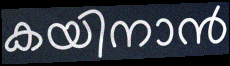
കയിനാൻ